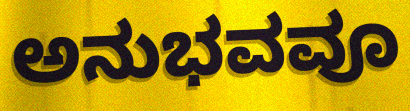
ಅನುಭವವೂ